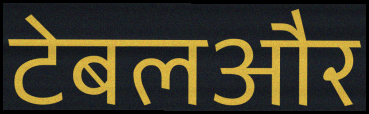
टेबलऔर